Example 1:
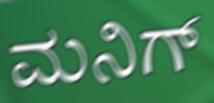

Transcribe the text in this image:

ಮನಿಗ್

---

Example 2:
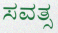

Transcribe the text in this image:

ಸವತ್ಸ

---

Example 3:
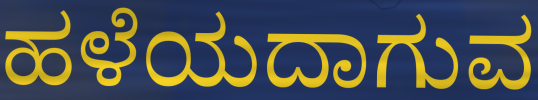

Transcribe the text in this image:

ಹಳೆಯದಾಗುವ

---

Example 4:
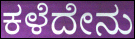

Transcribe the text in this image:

ಕಳೆದೇನು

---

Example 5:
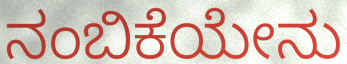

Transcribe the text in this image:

ನಂಬಿಕೆಯೇನು